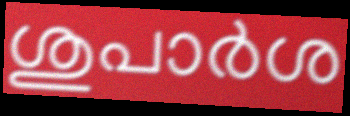
ശുപാർശ